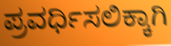
ಪ್ರವರ್ಧಿಸಲಿಕ್ಕಾಗಿ